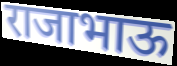
राजाभाऊ